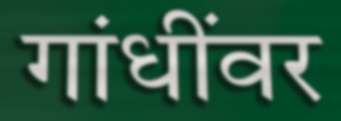
गांधींवर